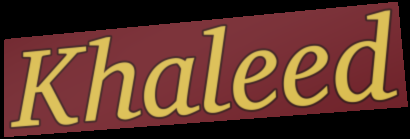
Khaleed